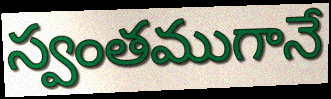
స్వంతముగానే